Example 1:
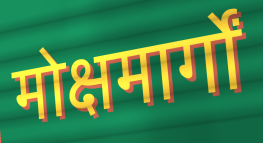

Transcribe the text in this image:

मोक्षमार्गों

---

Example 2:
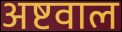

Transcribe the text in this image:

अष्टवाल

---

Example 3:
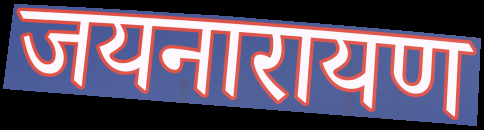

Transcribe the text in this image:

जयनारायण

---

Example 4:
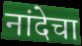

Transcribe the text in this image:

नांदेचा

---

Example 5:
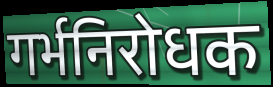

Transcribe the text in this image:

गर्भनिरोधक